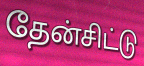
தேன்சிட்டு